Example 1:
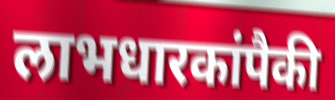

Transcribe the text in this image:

लाभधारकांपैकी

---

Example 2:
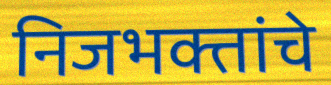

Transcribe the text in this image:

निजभक्तांचे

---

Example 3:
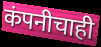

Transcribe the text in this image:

कंपनीचाही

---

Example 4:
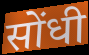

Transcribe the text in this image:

सोंधी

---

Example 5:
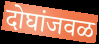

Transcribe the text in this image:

दोघांजवळ